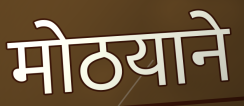
मोठयाने